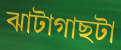
ঝাটাগাছটা